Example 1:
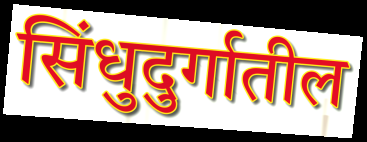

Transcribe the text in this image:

सिंधुदुर्गातील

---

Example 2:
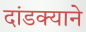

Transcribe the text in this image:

दांडक्याने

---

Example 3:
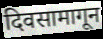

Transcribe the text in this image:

दिवसामागून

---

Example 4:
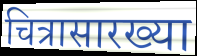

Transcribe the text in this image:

चित्रासारख्या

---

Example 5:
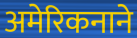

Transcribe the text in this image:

अमेरिकनाने